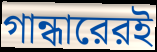
গান্ধারেরই